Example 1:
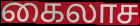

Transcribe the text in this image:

கைலாச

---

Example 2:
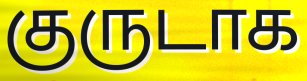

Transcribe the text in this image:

குருடாக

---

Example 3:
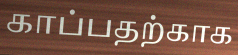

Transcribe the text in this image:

காப்பதற்காக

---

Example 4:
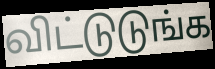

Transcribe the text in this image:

விட்டுடுங்க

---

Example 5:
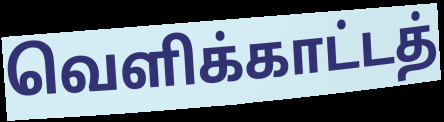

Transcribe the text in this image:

வெளிக்காட்டத்